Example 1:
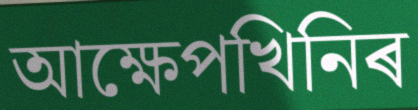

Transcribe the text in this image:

আক্ষেপখিনিৰ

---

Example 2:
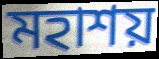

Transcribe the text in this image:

মহাশয়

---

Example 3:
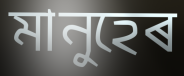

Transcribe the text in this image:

মানুহেৰ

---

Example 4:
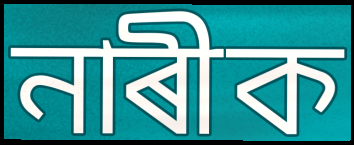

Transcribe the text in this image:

নাৰীক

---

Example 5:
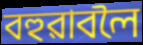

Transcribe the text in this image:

বহুৱাবলৈ